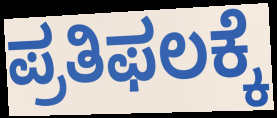
ಪ್ರತಿಫಲಕ್ಕೆ